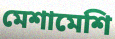
মেশামেশি